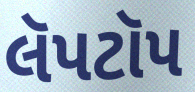
લૅપટૉપ